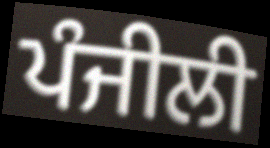
ਪੰਜੀਲੀ